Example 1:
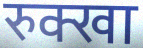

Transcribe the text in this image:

रुक्खा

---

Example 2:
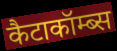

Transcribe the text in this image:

कैटाकॉम्ब्स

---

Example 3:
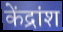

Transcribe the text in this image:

केंद्रांश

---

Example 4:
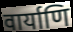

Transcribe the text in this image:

वार्याणि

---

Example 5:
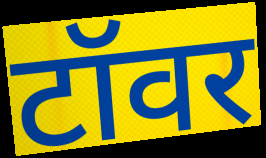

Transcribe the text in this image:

टॉवर